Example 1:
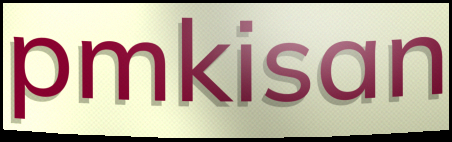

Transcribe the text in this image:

pmkisan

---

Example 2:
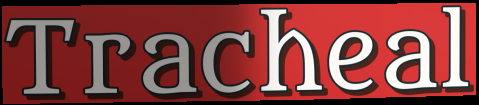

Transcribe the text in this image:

Tracheal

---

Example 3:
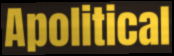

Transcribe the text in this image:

Apolitical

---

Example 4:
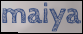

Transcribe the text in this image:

maiya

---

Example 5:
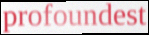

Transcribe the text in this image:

profoundest